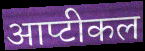
आप्टीकल